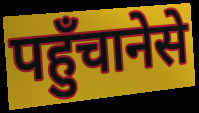
पहुँचानेसे